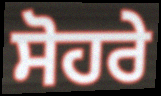
ਸੋਹਰੇ